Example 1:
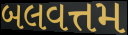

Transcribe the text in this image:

બલવત્તમ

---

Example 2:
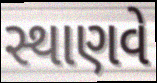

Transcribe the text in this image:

સ્થાણવે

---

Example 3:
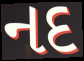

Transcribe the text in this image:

નદ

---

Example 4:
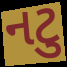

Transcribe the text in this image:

નટુ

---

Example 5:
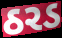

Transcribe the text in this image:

ઠરડ